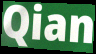
Qian